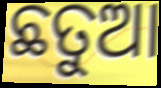
ଛତୁଆ